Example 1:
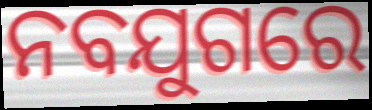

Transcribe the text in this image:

ନବଯୁଗରେ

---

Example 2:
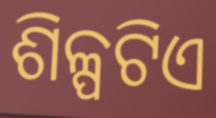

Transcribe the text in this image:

ଶିଳ୍ପଟିଏ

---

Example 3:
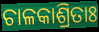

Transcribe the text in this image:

ଚାଳକାଶ୍ରିତାଃ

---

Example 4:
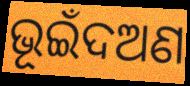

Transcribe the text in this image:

ଭୂଇଁଦଅଣ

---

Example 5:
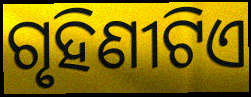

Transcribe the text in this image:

ଗୃହିଣୀଟିଏ